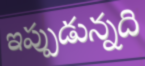
ఇప్పుడున్నది